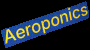
Aeroponics